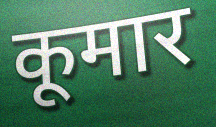
कूमार